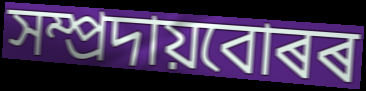
সম্প্ৰদায়বোৰৰ